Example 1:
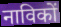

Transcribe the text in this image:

नाविकों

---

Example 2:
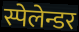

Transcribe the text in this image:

स्पेलेन्डर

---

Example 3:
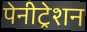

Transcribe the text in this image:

पेनीट्रेशन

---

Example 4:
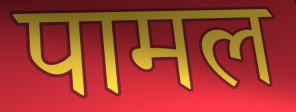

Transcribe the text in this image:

पामल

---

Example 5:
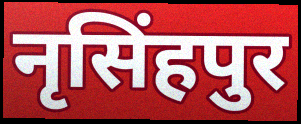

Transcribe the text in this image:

नृसिंहपुर